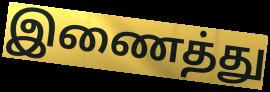
இணைத்து